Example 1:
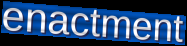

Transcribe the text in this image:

enactment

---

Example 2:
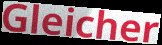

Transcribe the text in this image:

Gleicher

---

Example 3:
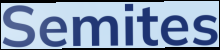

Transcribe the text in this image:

Semites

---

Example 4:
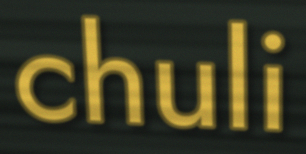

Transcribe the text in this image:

chuli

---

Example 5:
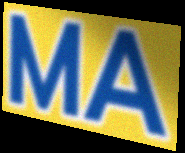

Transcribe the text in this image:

MA